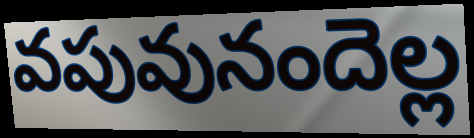
వపువునందెల్ల